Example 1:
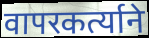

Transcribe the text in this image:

वापरकर्त्याने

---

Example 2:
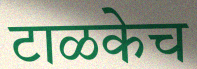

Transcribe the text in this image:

टाळकेच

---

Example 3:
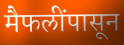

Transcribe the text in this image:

मैफलींपासून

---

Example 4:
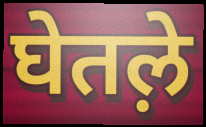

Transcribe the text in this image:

घेतल़े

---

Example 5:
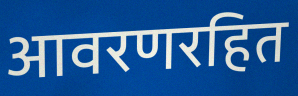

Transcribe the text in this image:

आवरणरहित